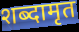
शब्दामृत